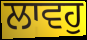
ਲਾਵਹੁ